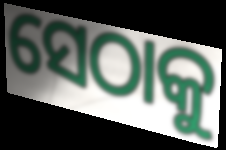
ସେଠାକୁ